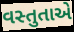
વસ્તુતાએ